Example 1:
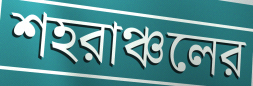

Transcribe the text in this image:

শহরাঞ্চলের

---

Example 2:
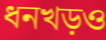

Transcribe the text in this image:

ধনখড়ও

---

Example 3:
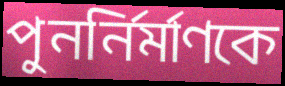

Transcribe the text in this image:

পুনর্নির্মাণকে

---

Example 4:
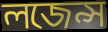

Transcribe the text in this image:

লজেন্স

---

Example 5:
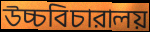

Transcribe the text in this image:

উচ্চবিচারালয়